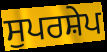
ਸੁਪਰਸ਼ੇਪ